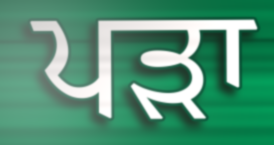
ਪੜਾ